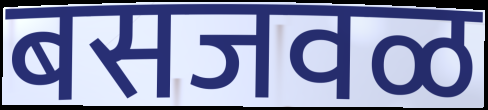
बसजवळ